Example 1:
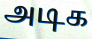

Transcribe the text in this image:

அடிக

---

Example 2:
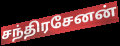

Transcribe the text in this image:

சந்திரசேனன்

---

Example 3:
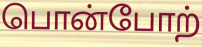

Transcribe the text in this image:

பொன்போற்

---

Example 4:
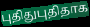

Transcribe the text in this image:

புதிதுபுதிதாக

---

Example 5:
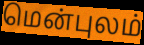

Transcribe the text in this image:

மென்புலம்